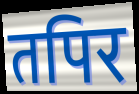
तपिर